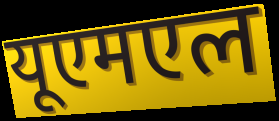
यूएमएल